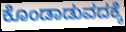
ಕೊಂಡಾಡುವದಕ್ಕೆ